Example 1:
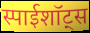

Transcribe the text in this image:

स्पाईशॉट्स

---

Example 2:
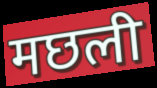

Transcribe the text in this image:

मछली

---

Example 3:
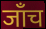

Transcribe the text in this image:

जाँच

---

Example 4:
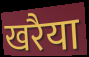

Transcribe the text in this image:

खरैया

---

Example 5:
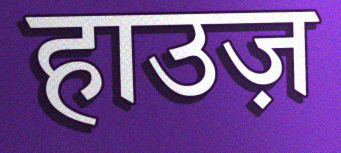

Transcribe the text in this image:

हाउज़